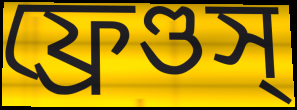
ফ্রেণ্ডস্